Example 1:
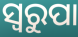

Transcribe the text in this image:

ସ୍ୱରୁପା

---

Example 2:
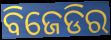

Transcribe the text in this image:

ବିଜେଡିର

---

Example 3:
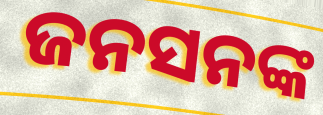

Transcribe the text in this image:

ଜନସନଙ୍କ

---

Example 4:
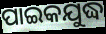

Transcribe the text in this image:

ପାଇକଯୁଦ୍ଧ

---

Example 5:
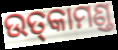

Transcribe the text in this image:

ଉତ୍‌କାମଣ୍ଡ